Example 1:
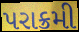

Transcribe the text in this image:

પરાક્રમી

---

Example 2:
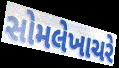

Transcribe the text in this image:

સોમલેખાચરે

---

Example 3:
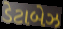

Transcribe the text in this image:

ડેટાબેઝ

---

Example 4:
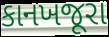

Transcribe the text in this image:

કાનખજૂરા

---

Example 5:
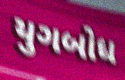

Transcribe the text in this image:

યુગબોધ